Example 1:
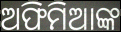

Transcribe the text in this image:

ଅଫିମିଆଙ୍କ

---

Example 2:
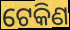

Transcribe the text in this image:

ଟେକିଣ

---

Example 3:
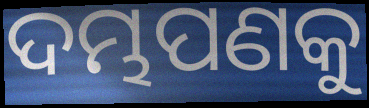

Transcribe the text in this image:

ଦମ୍ଭପଣକୁ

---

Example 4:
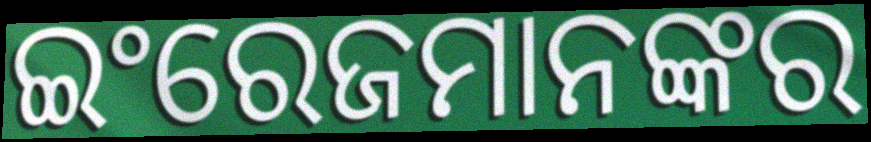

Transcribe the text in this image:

ଇଂରେଜମାନଙ୍କର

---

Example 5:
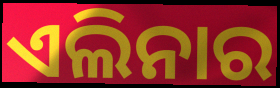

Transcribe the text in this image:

ଏଲିନାର